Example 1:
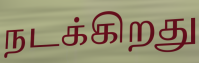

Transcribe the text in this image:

நடக்கிறது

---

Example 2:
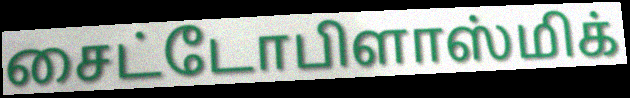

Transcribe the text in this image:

சைட்டோபிளாஸ்மிக்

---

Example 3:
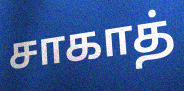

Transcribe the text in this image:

சாகாத்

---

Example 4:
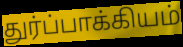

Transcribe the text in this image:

துர்ப்பாக்கியம்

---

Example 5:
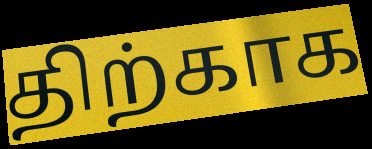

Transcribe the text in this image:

திற்காக